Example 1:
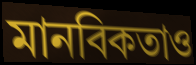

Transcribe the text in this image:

মানবিকতাও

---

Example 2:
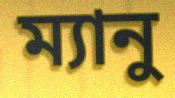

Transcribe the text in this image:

ম্যানু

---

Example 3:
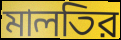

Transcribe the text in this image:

মালতির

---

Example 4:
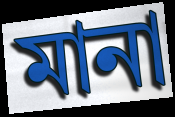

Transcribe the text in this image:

মানা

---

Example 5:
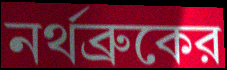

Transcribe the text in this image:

নর্থব্রুকের